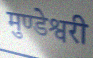
मुण्डेश्वरी